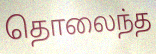
தொலைந்த